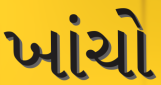
ખાંચો